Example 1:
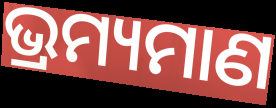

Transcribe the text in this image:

ଭ୍ରମ୍ୟମାଣ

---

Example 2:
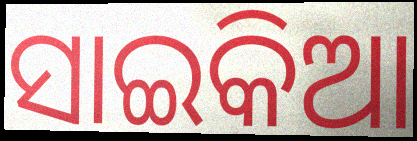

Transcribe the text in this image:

ସାଇକିଆ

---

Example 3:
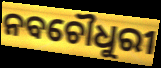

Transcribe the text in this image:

ନବଚୌଧୁରୀ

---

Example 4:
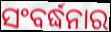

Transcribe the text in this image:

ସଂବର୍ଦ୍ଧନାର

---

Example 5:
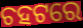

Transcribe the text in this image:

ଚହଟରେ